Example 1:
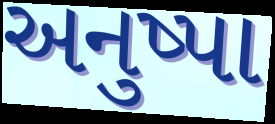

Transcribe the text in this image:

અનુષ્પા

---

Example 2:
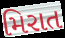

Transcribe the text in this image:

મિરાત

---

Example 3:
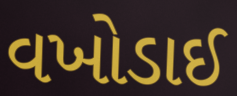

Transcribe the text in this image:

વખોડાઈ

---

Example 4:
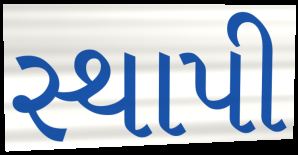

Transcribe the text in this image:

સ્થાપી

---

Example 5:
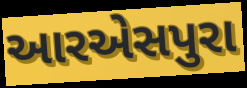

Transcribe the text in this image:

આરએસપુરા